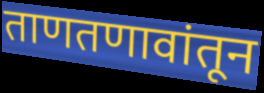
ताणतणावांतून